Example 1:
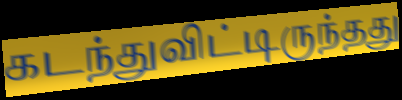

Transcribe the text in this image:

கடந்துவிட்டிருந்தது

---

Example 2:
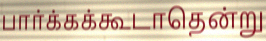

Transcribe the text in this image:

பார்க்கக்கூடாதென்று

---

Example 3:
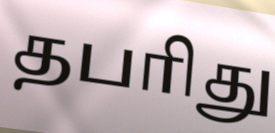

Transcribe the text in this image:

தபரிது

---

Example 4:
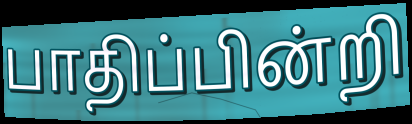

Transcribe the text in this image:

பாதிப்பின்றி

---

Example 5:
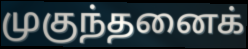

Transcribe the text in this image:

முகுந்தனைக்